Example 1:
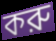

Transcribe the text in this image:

করু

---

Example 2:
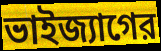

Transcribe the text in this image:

ভাইজ্যাগের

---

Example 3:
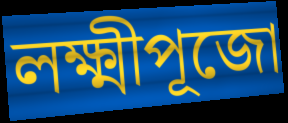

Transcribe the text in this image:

লক্ষ্মীপূজো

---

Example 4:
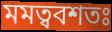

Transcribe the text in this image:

মমত্ববশতঃ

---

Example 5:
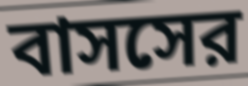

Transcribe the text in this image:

বাসসের